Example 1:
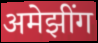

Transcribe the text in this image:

अमेझींग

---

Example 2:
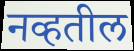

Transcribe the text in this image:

नव्हतील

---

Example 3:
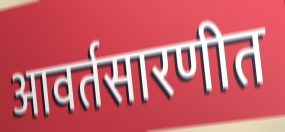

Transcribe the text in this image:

आवर्तसारणीत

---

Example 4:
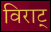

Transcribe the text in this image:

विराट्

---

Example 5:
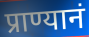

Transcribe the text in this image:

प्राण्यानं